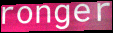
ronger